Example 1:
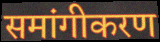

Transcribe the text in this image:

समांगीकरण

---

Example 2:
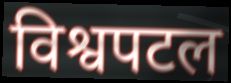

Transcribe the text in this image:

विश्वपटल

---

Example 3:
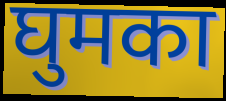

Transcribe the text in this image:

घुमका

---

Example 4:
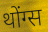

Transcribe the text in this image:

थोंग्स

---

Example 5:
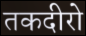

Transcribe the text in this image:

तकदीरो